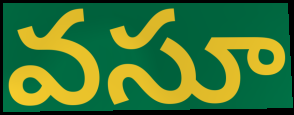
వసూ